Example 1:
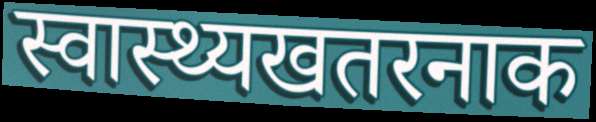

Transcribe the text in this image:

स्वास्थ्यखतरनाक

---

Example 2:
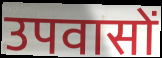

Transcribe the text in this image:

उपवासों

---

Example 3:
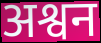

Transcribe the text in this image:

अश्वन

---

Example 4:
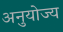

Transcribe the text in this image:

अनुयोज्य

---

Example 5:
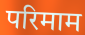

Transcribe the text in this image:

परिमाम